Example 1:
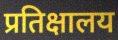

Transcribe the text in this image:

प्रतिक्षालय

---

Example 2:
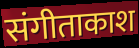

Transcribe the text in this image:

संगीताकाश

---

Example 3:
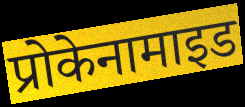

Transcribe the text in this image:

प्रोकेनामाइड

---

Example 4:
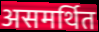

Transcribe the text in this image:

असमर्थित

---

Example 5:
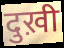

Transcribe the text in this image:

दुख़ी